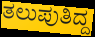
ತಲುಪುತಿದ್ದ